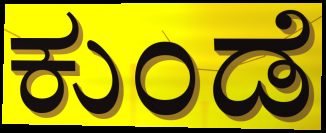
ಕುಂಡೆ